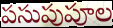
పసుపుపూల